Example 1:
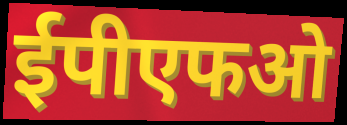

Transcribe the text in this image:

ईपीएफओ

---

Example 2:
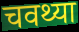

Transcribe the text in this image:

चवथ्या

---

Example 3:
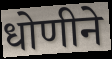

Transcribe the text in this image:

धोणीने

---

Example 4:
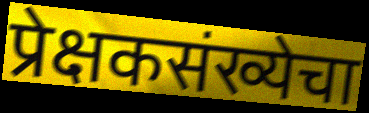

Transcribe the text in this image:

प्रेक्षकसंख्येचा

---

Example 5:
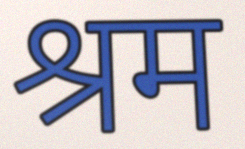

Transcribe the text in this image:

श्रम